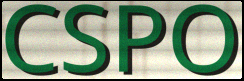
CSPO